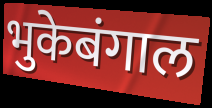
भुकेबंगाल